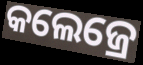
କଲେଜ୍ରେ